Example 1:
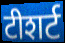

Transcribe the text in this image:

टीशर्ट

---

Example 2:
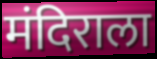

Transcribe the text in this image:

मंदिराला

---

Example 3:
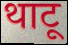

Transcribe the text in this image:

थाटू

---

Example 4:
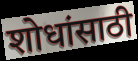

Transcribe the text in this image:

शोधांसाठी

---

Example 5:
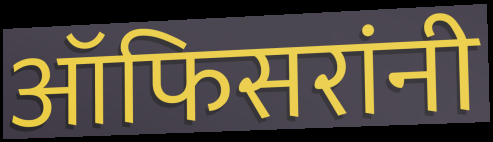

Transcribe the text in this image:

ऑफिसरांनी